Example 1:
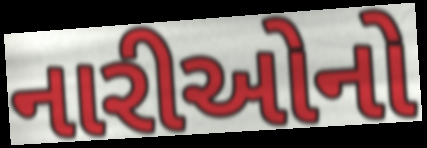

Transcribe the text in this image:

નારીઓનો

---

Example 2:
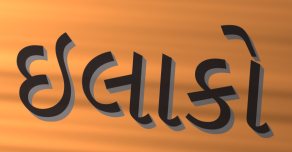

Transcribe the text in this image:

ઇલાકો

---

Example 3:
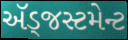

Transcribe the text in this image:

ઍડ્જસ્ટમેન્ટ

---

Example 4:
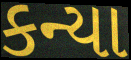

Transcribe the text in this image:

કન્યા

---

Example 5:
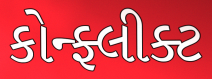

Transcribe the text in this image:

કોન્ફ્લીક્ટ